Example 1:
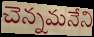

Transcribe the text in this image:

చెన్నమనేని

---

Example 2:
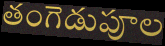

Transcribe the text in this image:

తంగెడుపూల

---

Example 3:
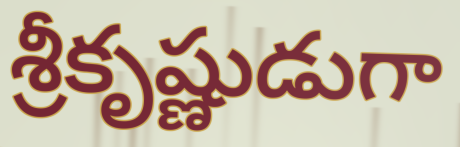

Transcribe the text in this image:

శ్రీకృష్ణుడుగా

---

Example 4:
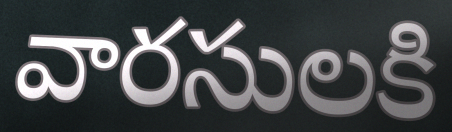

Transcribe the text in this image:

వారసులకి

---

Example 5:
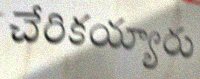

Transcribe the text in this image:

చేరికయ్యారు